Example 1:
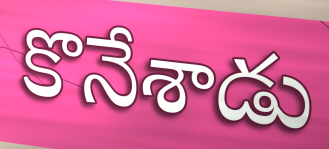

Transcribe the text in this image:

కొనేశాడు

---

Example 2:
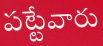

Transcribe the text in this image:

పట్టేవారు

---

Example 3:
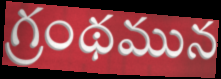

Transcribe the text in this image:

గ్రంథమున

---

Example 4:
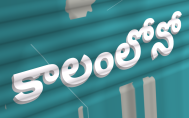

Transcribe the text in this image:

కాలంలోనో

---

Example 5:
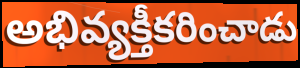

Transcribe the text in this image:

అభివ్యక్తీకరించాడు